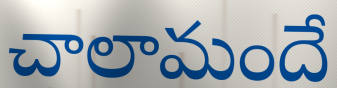
చాలామందే